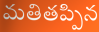
మతితప్పిన